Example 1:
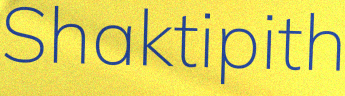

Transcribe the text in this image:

Shaktipith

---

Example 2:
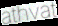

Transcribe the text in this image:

athvat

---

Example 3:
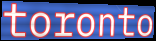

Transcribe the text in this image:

toronto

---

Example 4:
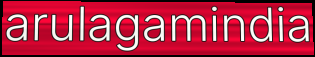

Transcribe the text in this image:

arulagamindia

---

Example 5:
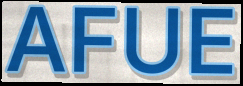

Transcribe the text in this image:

AFUE